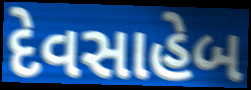
દેવસાહેબ